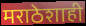
मराठेशाही